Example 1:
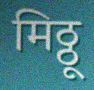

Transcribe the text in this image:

मिठ्ठू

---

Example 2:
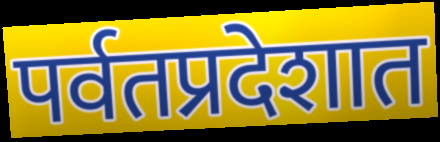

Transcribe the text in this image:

पर्वतप्रदेशात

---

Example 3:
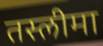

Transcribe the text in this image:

तस्लीमा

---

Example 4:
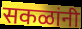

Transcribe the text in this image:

सकळांनी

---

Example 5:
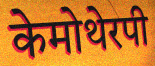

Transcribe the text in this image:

केमोथेरपी